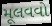
મૂલવવો